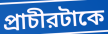
প্রাচীরটাকে